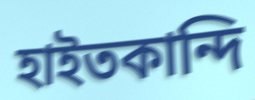
হাইতকান্দি